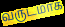
வருடமாக